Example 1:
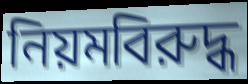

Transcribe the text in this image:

নিয়মবিরুদ্ধ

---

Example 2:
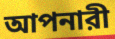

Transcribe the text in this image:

আপনারী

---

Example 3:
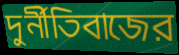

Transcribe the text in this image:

দুর্নীতিবাজের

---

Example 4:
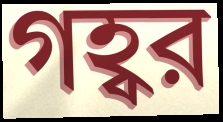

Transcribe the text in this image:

গহ্বর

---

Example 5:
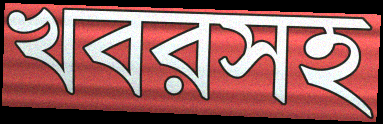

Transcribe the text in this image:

খবরসহ